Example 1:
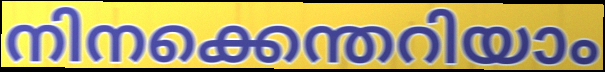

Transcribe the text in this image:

നിനക്കെന്തറിയാം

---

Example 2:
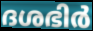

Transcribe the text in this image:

ദശഭിർ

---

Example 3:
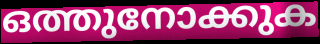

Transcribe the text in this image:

ഒത്തുനോക്കുക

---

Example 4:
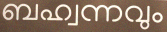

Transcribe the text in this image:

ബഹ്വന്നവും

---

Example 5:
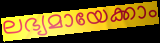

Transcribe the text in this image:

ലഭ്യമായേക്കാം